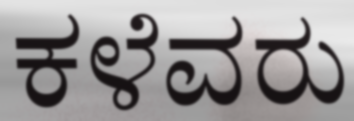
ಕಳೆವರು